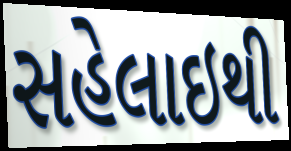
સહેલાઇથી